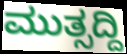
ಮುತ್ಸದ್ದಿ